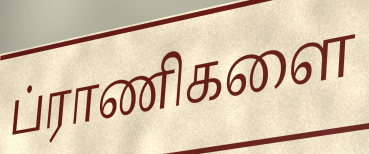
ப்ராணிகளை